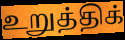
உறுத்திக்